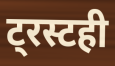
ट्रस्टही